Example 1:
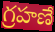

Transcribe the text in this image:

గ్రహణే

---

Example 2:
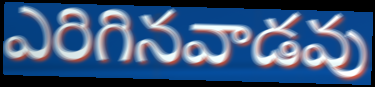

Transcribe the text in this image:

ఎరిగినవాడవు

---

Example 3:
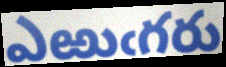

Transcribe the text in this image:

ఎఱుఁగరు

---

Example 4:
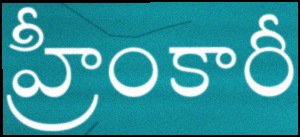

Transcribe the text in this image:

హ్రీంకారీ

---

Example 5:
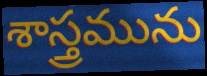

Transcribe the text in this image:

శాస్త్రమును